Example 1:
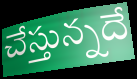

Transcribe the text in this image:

చేస్తున్నదే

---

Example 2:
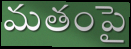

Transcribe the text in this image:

మతంపై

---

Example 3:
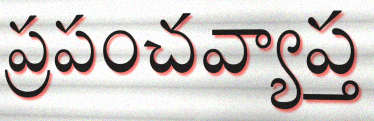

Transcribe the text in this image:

ప్రపంచవ్యాప్త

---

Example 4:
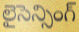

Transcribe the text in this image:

లైసెన్సింగ్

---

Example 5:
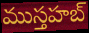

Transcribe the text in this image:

ముస్తహబ్